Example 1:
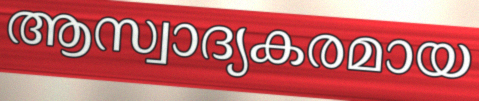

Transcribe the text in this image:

ആസ്വാദ്യകരമായ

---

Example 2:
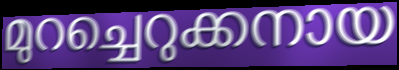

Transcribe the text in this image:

മുറച്ചെറുക്കനായ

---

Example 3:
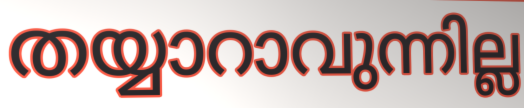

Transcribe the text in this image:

തയ്യാറാവുന്നില്ല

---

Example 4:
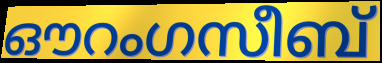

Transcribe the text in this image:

ഔറംഗസീബ്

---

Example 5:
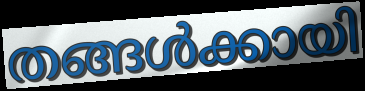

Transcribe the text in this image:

തങ്ങൾക്കായി